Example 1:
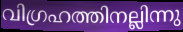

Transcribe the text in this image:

വിഗ്രഹത്തിനല്ലിന്നു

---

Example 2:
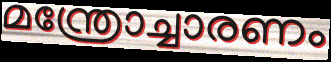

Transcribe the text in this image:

മന്ത്രോച്ചാരണം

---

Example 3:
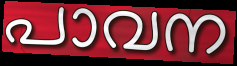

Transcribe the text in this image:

പാവന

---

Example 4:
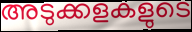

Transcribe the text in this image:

അടുക്കളകളുടെ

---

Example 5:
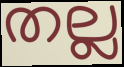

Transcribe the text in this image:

തല്ല